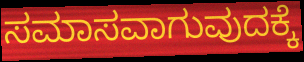
ಸಮಾಸವಾಗುವುದಕ್ಕೆ